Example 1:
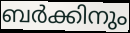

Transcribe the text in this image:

ബർക്കിനും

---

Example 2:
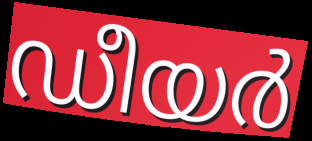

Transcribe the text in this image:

ഡീയർ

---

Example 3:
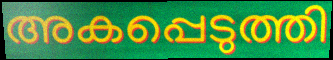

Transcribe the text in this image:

അകപ്പെടുത്തി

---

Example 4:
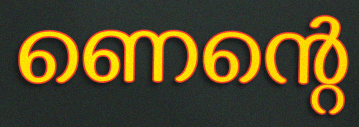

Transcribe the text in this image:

ണെന്റെ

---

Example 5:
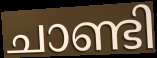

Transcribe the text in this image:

ചാണ്ടി